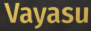
Vayasu